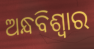
ଅନ୍ଧବିଶ୍ୱାର